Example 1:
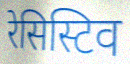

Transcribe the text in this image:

रेसिस्टिव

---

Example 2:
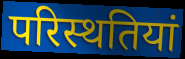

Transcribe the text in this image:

परिस्थतियां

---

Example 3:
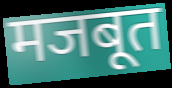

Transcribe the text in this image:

मजबूत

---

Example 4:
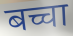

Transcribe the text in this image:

बच्चा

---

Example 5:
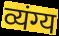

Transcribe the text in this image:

व्‍यंग्‍य